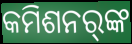
କମିଶନର୍‌ଙ୍କ